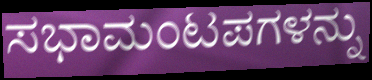
ಸಭಾಮಂಟಪಗಳನ್ನು